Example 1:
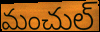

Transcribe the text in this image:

మంచుల్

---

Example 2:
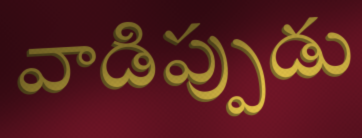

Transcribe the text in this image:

వాడిప్పుడు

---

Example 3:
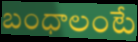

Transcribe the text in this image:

బంధాలంటే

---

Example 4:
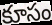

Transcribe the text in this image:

కూసం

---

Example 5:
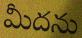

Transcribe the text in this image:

మీదను